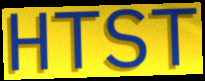
HTST